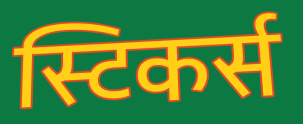
स्टिकर्स